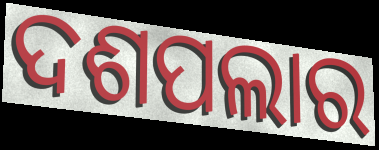
ଦଶପଲାର